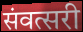
संवत्सरी